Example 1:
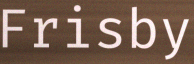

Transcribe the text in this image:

Frisby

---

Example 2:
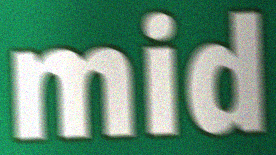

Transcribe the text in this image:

mid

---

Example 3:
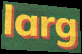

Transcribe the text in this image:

larg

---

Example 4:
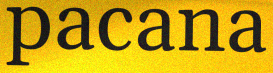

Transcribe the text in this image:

pacana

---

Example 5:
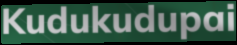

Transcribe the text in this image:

Kudukudupai